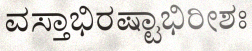
ವಸ್ತಾಭಿರಷ್ಟಾಭಿರೀಶಃ